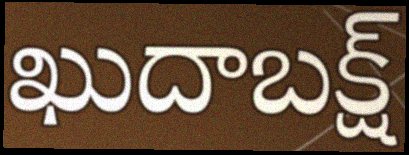
ఖుదాబక్ష్